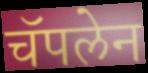
चॅपलेन